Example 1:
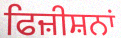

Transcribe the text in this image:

ਫਿਜ਼ੀਸ਼ਨਾਂ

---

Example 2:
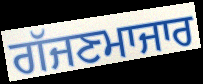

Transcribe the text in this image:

ਗੱਜਣਮਾਜਾਰ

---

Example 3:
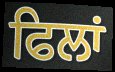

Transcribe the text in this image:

ਫਿਲਾਂ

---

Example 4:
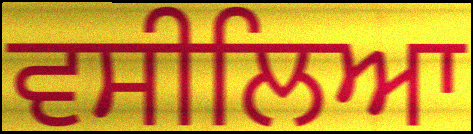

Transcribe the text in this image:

ਵਸੀਲਿਆ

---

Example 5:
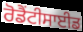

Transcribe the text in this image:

ਰੋਡੈਂਟੀਸਾਈਡ